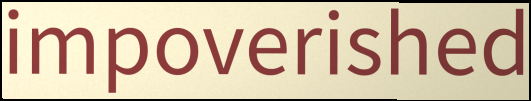
impoverished